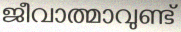
ജീവാത്മാവുണ്ട്